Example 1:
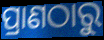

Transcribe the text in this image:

ପ୍ରାଣଠାରୁ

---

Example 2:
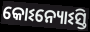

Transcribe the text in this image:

କୋଽନ୍ୟୋଽସ୍ତି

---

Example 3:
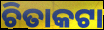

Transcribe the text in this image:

ଚିତାକଟା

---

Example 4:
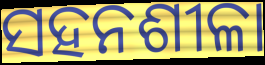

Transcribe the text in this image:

ସହନଶୀଳା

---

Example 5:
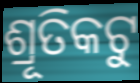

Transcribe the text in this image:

ଶ୍ରୂତିକଟୁ